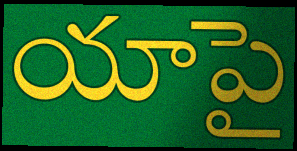
యాపై